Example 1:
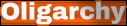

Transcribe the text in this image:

Oligarchy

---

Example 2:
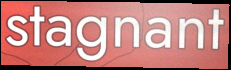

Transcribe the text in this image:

stagnant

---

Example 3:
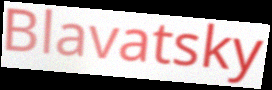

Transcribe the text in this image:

Blavatsky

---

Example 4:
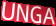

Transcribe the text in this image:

UNGA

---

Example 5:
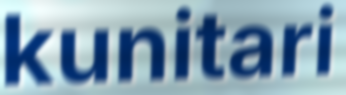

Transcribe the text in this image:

kunitari